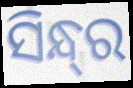
ସିନ୍ଧ୍‌ର